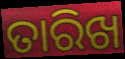
ତାରିଖ